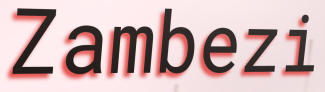
Zambezi